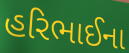
હરિભાઈના